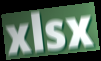
xlsx